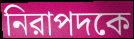
নিরাপদকে